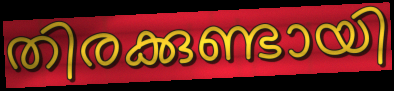
തിരക്കുണ്ടായി